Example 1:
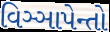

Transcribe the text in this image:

વિઞ્ઞાપેન્તો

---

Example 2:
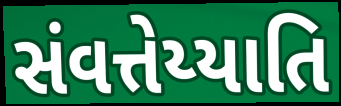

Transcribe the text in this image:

સંવત્તેય્યાતિ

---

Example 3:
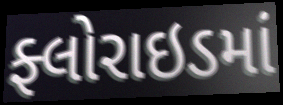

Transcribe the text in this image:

ફ્લોરાઇડમાં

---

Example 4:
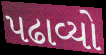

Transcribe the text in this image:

પઢાવ્યો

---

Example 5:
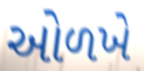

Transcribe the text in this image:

ઓળખે